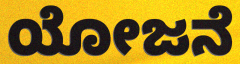
ಯೋಜನೆ